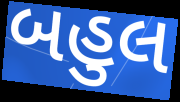
બહુલ